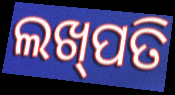
ଲଖ୍‌ପତି